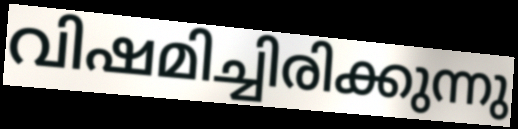
വിഷമിച്ചിരിക്കുന്നു